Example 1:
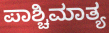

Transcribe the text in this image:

ಪಾಶ್ಚಿಮಾತ್ಯ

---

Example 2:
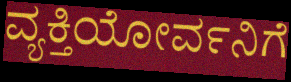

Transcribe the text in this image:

ವ್ಯಕ್ತಿಯೋರ್ವನಿಗೆ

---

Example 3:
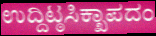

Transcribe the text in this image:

ಉದ್ದಿಟ್ಠಸಿಕ್ಖಾಪದಂ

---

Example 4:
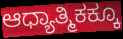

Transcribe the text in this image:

ಆಧ್ಯಾತ್ಮಿಕಕ್ಕೂ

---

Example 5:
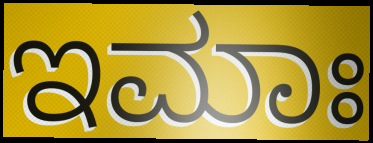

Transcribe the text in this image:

ಇಮಾಃ